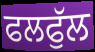
ਫਲਫੁੱਲ